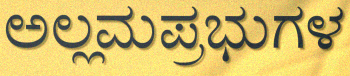
ಅಲ್ಲಮಪ್ರಭುಗಳ